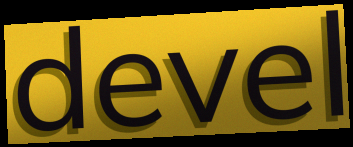
devel